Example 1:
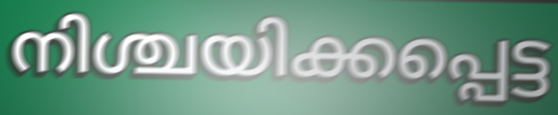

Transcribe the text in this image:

നിശ്ചയിക്കപ്പെട്ട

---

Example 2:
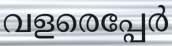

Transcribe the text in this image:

വളരെപ്പേർ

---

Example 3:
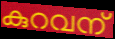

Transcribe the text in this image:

കുറവന്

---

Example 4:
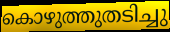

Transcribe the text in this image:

കൊഴുത്തുതടിച്ചു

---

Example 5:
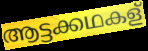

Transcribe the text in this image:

ആട്ടക്കഥകള്